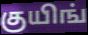
குயிங்